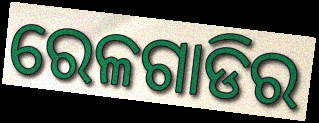
ରେଳଗାଡିର